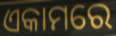
ଏକାମରେ